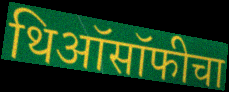
थिऑसॉफीचा